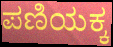
ಪಣಿಯಕ್ಕ